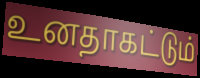
உனதாகட்டும்